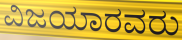
ವಿಜಯಾರವರು